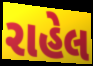
રાહેલ